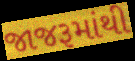
જાજરૂમાંથી